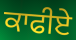
ਕਾਫੀਏ